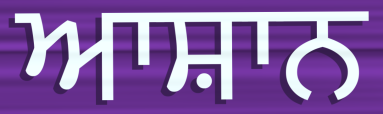
ਆਸ਼ਾਨ